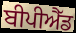
ਬੀਪੀਐੱਡ